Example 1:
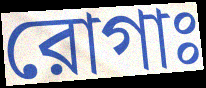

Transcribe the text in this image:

রোগাঃ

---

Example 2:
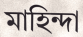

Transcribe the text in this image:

মাহিন্দা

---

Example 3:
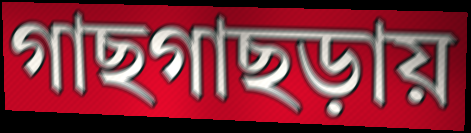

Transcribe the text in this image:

গাছগাছড়ায়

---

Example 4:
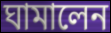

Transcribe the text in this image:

ঘামালেন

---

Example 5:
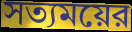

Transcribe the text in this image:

সত্যময়ের